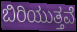
ಬಿರಿಯುತ್ತವೆ